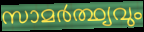
സാമർത്ഥ്യവും